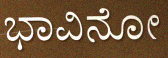
ಭಾವಿನೋ